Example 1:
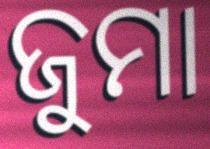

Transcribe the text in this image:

ଜୁମା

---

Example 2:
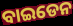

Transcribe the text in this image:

ବାଇଡେନ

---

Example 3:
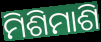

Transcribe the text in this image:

ମିଶିମାଶି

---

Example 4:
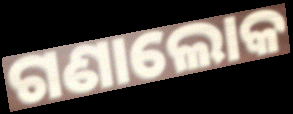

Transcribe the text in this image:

ଗଣାଲୋକ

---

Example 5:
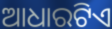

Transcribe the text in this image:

ଆଧାରଟିଏ